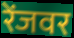
रेंजवर